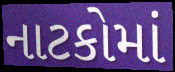
નાટકોમાં